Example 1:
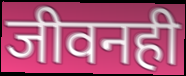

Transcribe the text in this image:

जीवनही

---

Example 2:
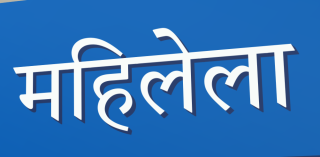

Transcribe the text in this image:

महिलेला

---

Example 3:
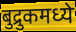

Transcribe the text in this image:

बुद्रुकमध्ये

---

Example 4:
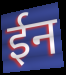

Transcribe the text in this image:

ईन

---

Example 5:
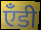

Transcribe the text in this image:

ऍंडी